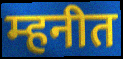
म्हनीत